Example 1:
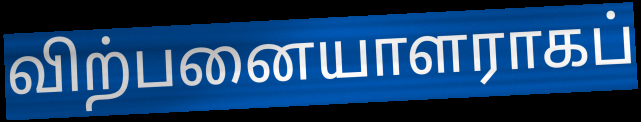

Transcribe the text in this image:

விற்பனையாளராகப்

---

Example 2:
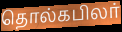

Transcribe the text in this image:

தொல்கபிலர்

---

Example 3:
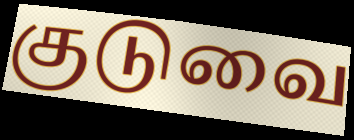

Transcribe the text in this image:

குடுவை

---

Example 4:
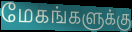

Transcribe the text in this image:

மேகங்களுக்கு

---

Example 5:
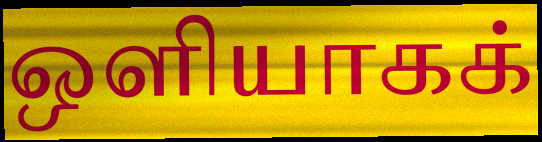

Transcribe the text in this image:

ஒளியாகக்